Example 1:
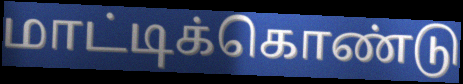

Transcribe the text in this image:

மாட்டிக்கொண்டு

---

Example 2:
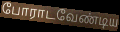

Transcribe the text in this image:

போராடவேண்டிய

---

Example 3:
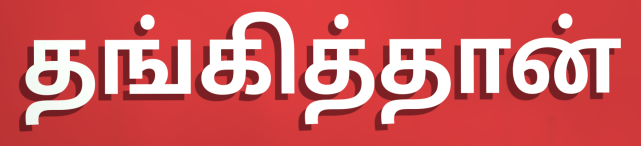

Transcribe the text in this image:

தங்கித்தான்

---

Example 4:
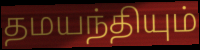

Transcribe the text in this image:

தமயந்தியும்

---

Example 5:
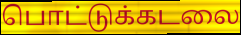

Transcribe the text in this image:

பொட்டுக்கடலை